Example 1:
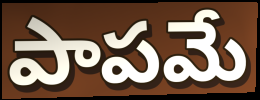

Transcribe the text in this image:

పాపమే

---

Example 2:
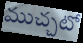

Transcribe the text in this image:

ముచ్చటో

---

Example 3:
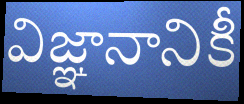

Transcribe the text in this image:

విజ్ఞానానికీ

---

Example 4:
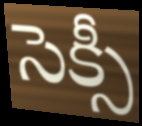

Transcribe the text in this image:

సెక్సీ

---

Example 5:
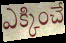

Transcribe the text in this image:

ఎక్కించే